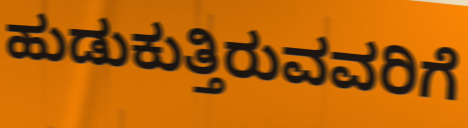
ಹುಡುಕುತ್ತಿರುವವರಿಗೆ